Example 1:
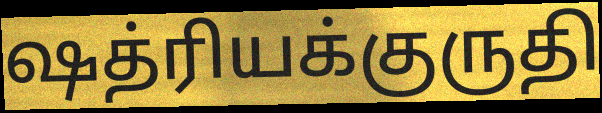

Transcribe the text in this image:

ஷத்ரியக்குருதி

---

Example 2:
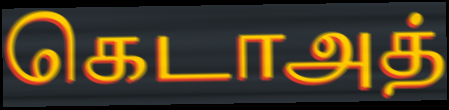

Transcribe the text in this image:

கெடாஅத்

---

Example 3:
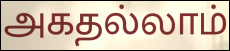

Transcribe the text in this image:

அகதல்லாம்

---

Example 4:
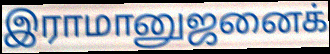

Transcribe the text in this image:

இராமானுஜனைக்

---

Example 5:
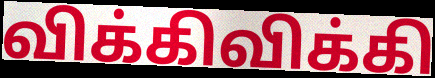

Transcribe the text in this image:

விக்கிவிக்கி